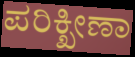
ಪರಿಕ್ಖೀಣಾ